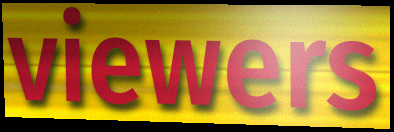
viewers